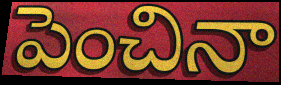
పెంచినా